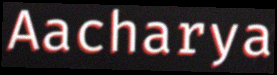
Aacharya